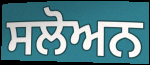
ਸਲੋਅਨ